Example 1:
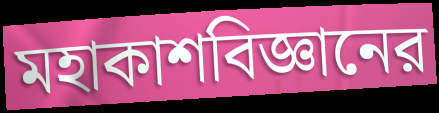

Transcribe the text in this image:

মহাকাশবিজ্ঞানের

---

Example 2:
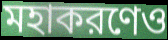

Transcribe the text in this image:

মহাকরণেও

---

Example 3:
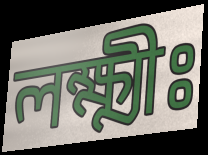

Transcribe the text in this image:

লক্ষ্মীঃ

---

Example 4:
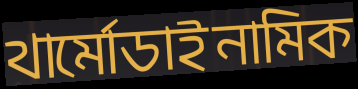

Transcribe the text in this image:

থার্মোডাইনামিক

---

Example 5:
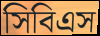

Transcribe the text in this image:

সিবিএস